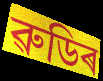
ৱুডিৰ